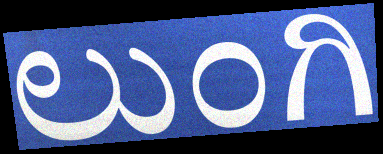
ಲುಂಗಿ